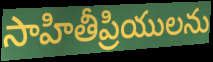
సాహితీప్రియులను